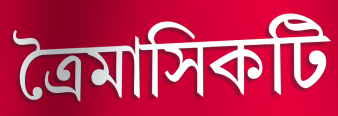
ত্রৈমাসিকটি